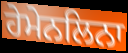
ਹੇਮੇਨਲਿਨਾ